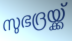
സുഭദ്രയ്ക്ക്